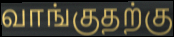
வாங்குதற்கு